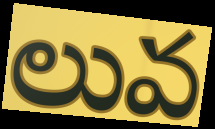
లువ